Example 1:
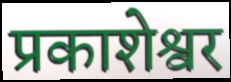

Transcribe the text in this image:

प्रकाशेश्वर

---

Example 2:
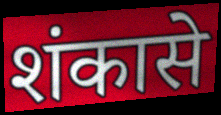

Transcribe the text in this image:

शंकासे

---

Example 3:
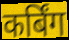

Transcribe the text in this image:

कर्बिंग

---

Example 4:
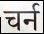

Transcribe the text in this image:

चर्न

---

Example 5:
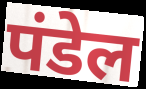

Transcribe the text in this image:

पंडेल